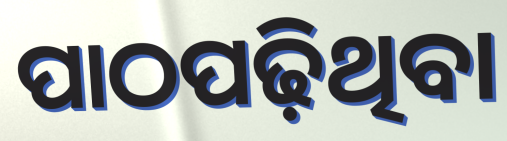
ପାଠପଢ଼ିଥିବା